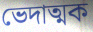
ভেদাত্মক